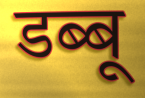
डब्बू